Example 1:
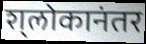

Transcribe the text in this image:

श्लोकानंतर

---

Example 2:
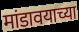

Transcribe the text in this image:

मांडावयाच्या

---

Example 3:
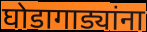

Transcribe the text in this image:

घोडागाड्यांना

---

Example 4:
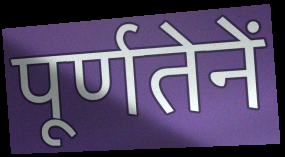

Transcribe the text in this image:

पूर्णतेनें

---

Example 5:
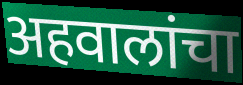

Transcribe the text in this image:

अहवालांचा